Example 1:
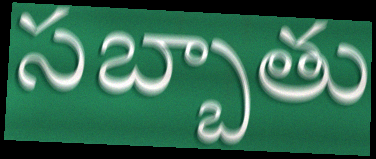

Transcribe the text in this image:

సబ్బాతు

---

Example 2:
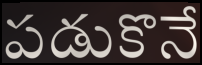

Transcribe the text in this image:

పడుకొనే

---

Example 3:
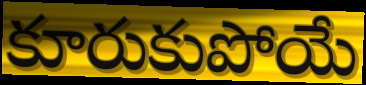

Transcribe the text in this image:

కూరుకుపోయే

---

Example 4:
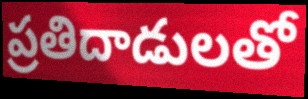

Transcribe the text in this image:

ప్రతిదాడులతో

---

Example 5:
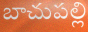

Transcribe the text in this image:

బాచుపల్లి